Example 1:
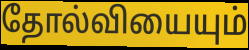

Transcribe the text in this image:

தோல்வியையும்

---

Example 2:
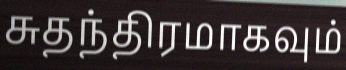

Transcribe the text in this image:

சுதந்திரமாகவும்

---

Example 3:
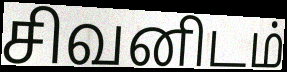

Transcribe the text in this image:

சிவனிடம்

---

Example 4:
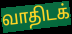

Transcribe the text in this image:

வாதிடக்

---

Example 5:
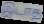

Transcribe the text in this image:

இடாத